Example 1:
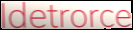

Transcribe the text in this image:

Idetrorce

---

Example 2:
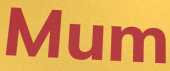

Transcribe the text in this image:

Mum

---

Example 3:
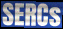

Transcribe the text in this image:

SERCs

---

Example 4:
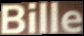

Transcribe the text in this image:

Bille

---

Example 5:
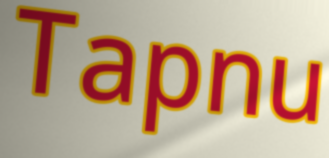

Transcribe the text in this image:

Tapnu